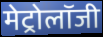
मेट्रोलॉजी